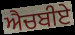
ਐਚਬੀਏ